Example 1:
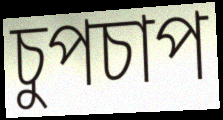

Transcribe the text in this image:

চুপচাপ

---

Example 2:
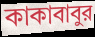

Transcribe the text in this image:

কাকাবাবুর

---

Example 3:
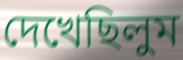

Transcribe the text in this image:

দেখেছিলুম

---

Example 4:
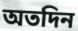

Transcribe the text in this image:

অতদিন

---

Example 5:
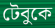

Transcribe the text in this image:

টেবুকে